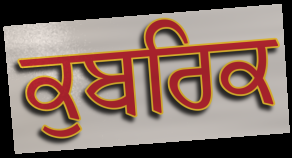
ਕੁਬਰਿਕ